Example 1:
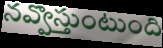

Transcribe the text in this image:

నవ్వొస్తుంటుంది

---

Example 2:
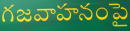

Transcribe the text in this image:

గజవాహనంపై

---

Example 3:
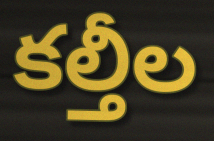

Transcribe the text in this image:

కల్తీల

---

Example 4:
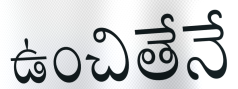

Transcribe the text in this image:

ఉంచితేనే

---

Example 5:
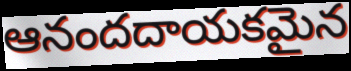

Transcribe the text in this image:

ఆనందదాయకమైన